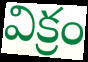
విక్రం